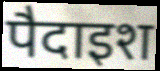
पैदाइश